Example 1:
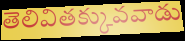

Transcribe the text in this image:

తెలివితక్కువవాడు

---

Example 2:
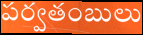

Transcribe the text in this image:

పర్వతంబులు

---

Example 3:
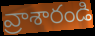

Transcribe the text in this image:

వ్రాశారండి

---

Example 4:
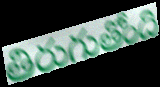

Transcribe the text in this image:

తిరుగుతోంది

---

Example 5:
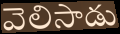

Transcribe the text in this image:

వెలిసాడు